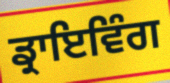
ਡ੍ਰਾਇਵਿੰਗ